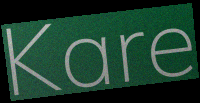
Kare